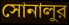
সোনালুর